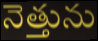
నెత్తును